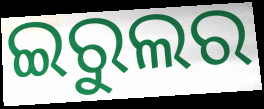
ଇରୁଲର